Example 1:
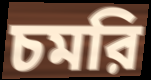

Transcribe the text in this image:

চমরি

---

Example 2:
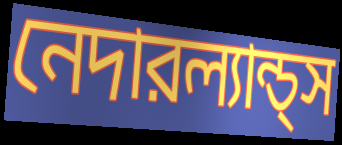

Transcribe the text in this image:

নেদারল্যান্ড্‌স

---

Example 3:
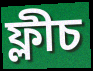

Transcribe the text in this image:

ফ্লীচ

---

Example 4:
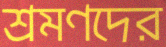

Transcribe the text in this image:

শ্রমণদের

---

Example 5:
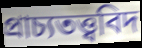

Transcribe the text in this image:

প্রাচ্যতত্ত্ববিদ